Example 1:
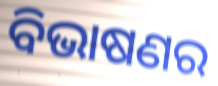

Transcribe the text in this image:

ବିଭାଷଣର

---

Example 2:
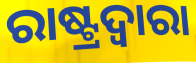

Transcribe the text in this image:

ରାଷ୍ଟ୍ରଦ୍ୱାରା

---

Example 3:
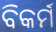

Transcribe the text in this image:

ବିକର୍ମ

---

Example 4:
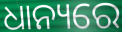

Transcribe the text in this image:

ଧାନ୍ୟରେ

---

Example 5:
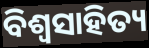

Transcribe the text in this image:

ବିଶ୍ଵସାହିତ୍ୟ